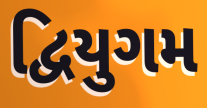
દ્વિયુગમ